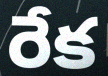
రేక